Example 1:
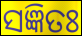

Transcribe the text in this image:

ସଜ୍ଞିତଃ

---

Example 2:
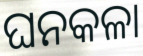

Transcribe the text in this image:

ଘନକଳା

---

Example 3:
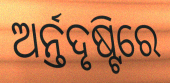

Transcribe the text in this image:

ଅର୍ନ୍ତଦୃଷ୍ଟିରେ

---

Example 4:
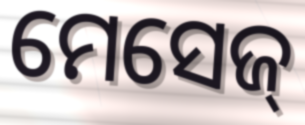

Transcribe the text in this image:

ମେସେଜ୍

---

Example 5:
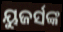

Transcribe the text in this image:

ୟୁଜର୍ସଙ୍କ